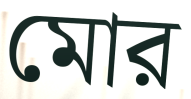
মোর